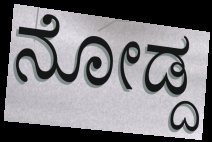
ನೋಡ್ದ